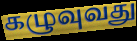
கழுவுவது